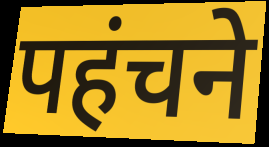
पहंचने